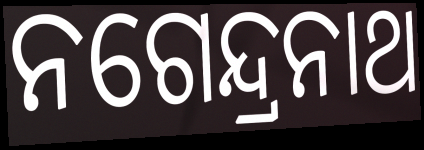
ନଗେନ୍ଦ୍ରନାଥ